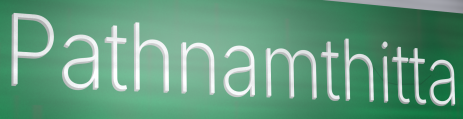
Pathnamthitta